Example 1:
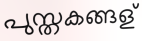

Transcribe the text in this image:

പുസ്തകങ്ങള്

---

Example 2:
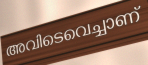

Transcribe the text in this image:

അവിടെവെച്ചാണ്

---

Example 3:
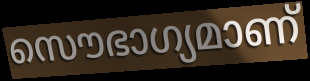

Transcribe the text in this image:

സൌഭാഗ്യമാണ്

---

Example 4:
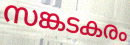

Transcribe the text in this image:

സങ്കടകരം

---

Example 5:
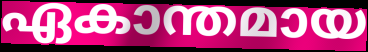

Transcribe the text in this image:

ഏകാന്തമായ